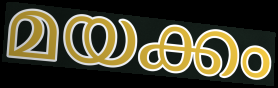
മയക്കം